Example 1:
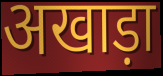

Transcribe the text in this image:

अखाड़ा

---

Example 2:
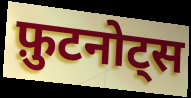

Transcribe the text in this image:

फ़ुटनोट्स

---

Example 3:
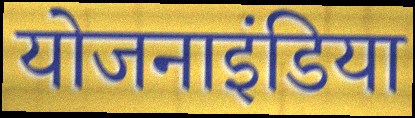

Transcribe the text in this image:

योजनाइंडिया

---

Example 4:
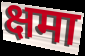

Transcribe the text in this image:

क्षमा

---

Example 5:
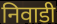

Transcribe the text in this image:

निवाडी